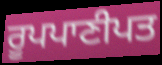
ਰੂਪਪਾਣੀਪਤ